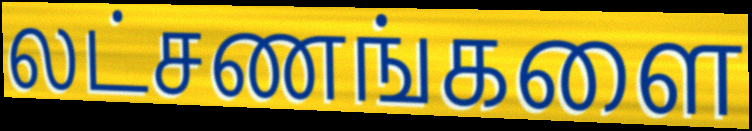
லட்சணங்களை